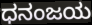
ಧನಂಜಯ